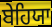
ਬੇਹਿਯਾ